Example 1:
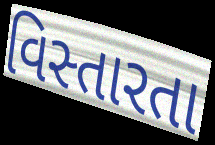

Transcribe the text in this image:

વિસ્તારતા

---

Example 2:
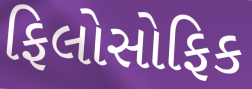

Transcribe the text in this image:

ફિલોસોફિક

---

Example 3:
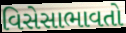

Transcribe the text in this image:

વિસેસાભાવતો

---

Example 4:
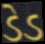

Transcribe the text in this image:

ડેડ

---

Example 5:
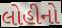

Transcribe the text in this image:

લોહીનો